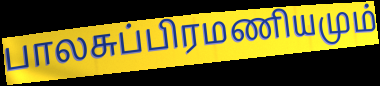
பாலசுப்பிரமணியமும்